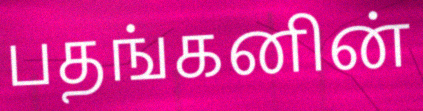
பதங்கனின்